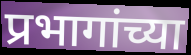
प्रभागांच्या